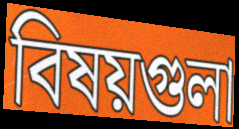
বিষয়গুলা